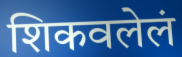
शिकवलेलं